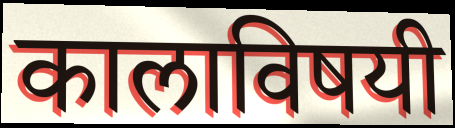
कालाविषयी